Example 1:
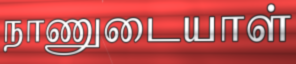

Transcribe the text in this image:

நாணுடையாள்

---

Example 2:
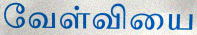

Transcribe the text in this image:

வேள்வியை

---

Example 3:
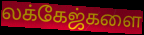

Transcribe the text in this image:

லக்கேஜ்களை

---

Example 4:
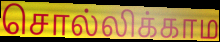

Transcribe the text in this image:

சொல்லிக்காம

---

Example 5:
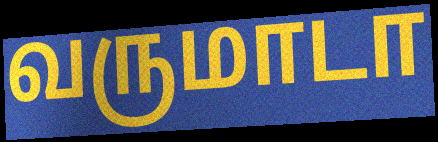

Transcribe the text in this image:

வருமாடா